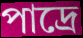
পাদ্রে